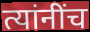
त्यांनींच